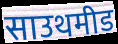
साउथमीड